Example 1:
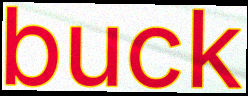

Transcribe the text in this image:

buck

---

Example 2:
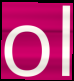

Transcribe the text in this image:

ol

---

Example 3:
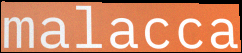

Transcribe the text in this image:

malacca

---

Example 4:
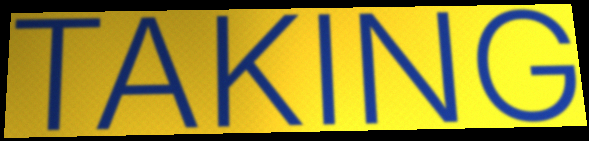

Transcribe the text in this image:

TAKING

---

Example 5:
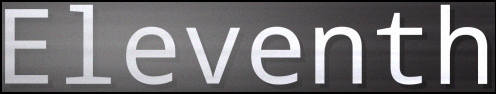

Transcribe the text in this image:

Eleventh